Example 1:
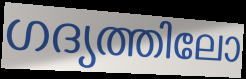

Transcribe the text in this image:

ഗദ്യത്തിലോ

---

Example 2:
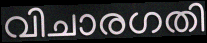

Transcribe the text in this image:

വിചാരഗതി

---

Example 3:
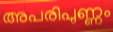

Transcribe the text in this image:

അപരിപുണ്ണം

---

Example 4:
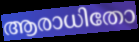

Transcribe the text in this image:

ആരാധിതോ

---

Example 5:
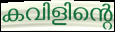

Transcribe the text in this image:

കവിളിന്റെ